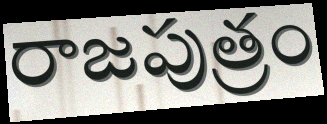
రాజపుత్రం